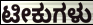
ಟೀಕುಗಳು